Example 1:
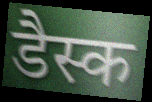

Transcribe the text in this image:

डैस्क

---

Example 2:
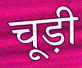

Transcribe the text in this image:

चूड़ी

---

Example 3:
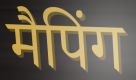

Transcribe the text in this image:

मैपिंग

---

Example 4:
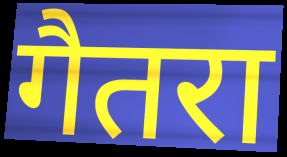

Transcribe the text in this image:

गैतरा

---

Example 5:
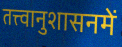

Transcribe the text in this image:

तत्त्वानुशासनमें